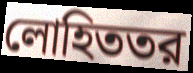
লোহিততর